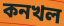
কনখল